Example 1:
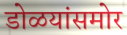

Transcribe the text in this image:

डोळयांसमोर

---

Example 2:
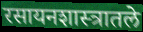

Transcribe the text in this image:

रसायनशास्त्रातले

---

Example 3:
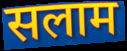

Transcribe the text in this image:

सलाम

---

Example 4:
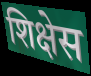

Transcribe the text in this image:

शिक्षेस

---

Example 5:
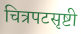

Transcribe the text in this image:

चित्रपटसृष्टी